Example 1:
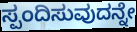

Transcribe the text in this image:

ಸ್ಪಂದಿಸುವುದನ್ನೇ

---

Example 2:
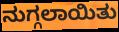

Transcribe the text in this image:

ನುಗ್ಗಲಾಯಿತು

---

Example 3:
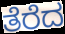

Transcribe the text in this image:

ತೆರೆದ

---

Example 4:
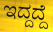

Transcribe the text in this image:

ಇದ್ದದ್ದೆ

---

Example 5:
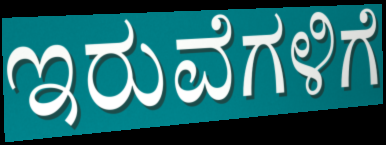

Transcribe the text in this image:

ಇರುವೆಗಳಿಗೆ